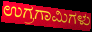
ಉಗ್ರಗಾಮಿಗಳು